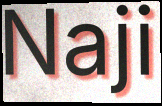
Naji